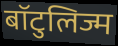
बॉटुलिज्म